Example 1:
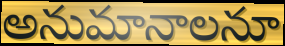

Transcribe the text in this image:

అనుమానాలనూ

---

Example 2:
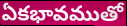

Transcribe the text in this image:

ఏకభావముతో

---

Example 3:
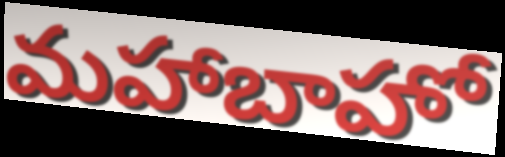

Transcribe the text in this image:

మహాబాహో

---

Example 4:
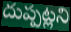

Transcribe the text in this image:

దుప్పట్లని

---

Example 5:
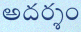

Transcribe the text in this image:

అదర్శం